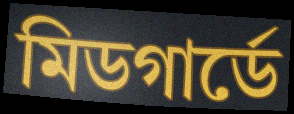
মিডগার্ডে